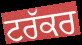
ਟਰੱਕਰ